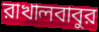
রাখালবাবুর